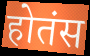
होतंस